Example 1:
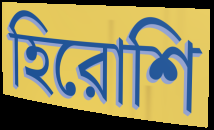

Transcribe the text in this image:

হিরোশি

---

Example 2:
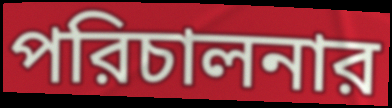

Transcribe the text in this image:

পরিচালনার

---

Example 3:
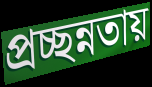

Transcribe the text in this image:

প্রচ্ছন্নতায়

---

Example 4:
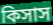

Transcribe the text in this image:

কিসাস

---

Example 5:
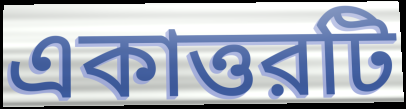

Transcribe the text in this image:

একাত্তরটি